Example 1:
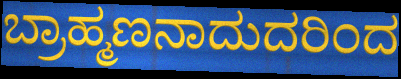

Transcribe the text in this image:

ಬ್ರಾಹ್ಮಣನಾದುದರಿಂದ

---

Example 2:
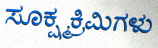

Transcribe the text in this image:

ಸೂಕ್ಷ್ಮಕ್ರಿಮಿಗಳು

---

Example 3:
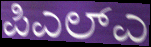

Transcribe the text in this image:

ಪಿಎಲ್ಎ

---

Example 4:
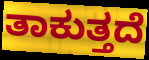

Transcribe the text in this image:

ತಾಕುತ್ತದೆ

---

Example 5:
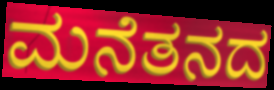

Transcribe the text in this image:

ಮನೆತನದ